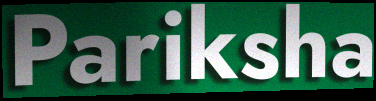
Pariksha